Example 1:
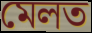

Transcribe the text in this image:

মেলত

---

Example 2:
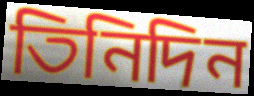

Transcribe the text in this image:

তিনিদিন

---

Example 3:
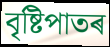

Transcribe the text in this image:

বৃষ্টিপাতৰ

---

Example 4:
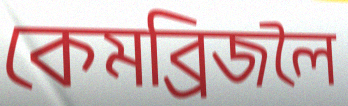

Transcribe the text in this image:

কেমব্ৰিজলৈ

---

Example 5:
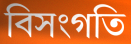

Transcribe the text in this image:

বিসংগতি